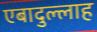
एबादुल्लाह